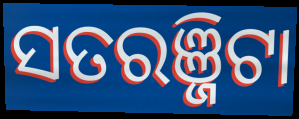
ସତରଞ୍ଜିଟା